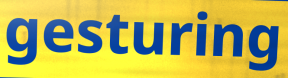
gesturing